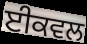
ਈਕਵਲ